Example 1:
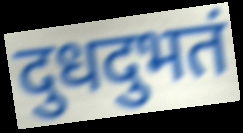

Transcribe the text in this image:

दुधदुभतं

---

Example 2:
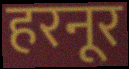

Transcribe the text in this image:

हरनूर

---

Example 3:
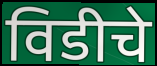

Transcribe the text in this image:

विडीचे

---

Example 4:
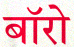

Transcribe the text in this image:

बॉरो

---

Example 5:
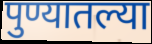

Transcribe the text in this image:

पुण्यातल्या